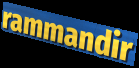
rammandir